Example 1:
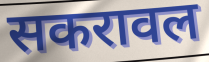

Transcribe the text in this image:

सकरावल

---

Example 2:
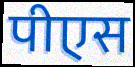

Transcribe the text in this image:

पीएस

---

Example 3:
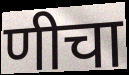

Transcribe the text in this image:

णीचा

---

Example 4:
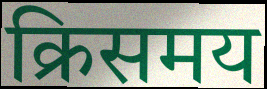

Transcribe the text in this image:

क्रिसमय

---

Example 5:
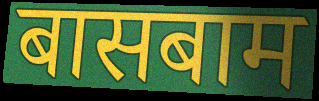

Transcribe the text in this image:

बासबाम